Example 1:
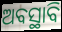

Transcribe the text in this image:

ଅବସ୍ଥାବି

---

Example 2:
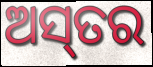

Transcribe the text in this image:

ଅସ୍‌ତର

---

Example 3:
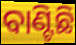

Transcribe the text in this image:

ବାଣ୍ଟିଛି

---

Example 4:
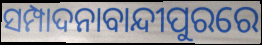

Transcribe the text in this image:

ସମ୍ପାଦନାବାନ୍ଦୀପୁରରେ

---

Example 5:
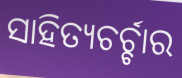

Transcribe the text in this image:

ସାହିତ୍ୟଚର୍ଚ୍ଚାର